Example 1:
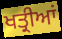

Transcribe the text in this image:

ਖਤ੍ਰੀਆਂ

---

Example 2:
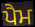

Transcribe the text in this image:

ਪੈਮ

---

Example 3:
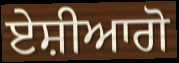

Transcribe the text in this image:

ਏਸ਼ੀਆਗੋ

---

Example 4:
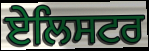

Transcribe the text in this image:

ਏਲਿਸਟਰ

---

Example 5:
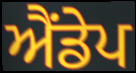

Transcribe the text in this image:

ਐਂਡੇਪ